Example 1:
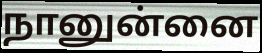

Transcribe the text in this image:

நானுன்னை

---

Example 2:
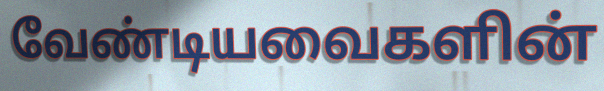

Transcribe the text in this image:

வேண்டியவைகளின்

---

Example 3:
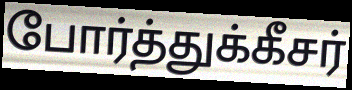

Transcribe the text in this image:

போர்த்துக்கீசர்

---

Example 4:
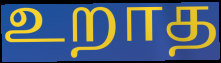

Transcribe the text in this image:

உறாத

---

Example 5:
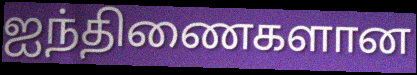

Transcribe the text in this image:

ஐந்திணைகளான